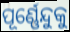
ପୂର୍ଣ୍ଣେନ୍ଦୁକୁ